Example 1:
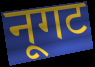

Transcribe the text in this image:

नूगट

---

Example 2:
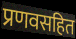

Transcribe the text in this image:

प्रणवसहित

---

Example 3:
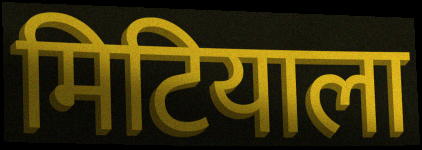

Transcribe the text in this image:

मिटियाला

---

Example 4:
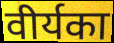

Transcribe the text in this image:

वीर्यका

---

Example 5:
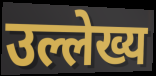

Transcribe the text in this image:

उल्लेख्य